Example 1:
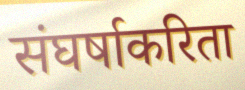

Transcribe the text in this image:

संघर्षाकरिता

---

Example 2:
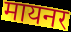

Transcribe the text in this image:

मायनर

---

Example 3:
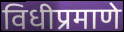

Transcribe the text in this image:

विधीप्रमाणे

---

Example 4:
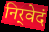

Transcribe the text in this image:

निर्वेदं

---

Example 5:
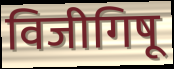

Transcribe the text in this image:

विजीगिषू